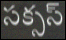
సక్సస్